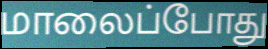
மாலைப்போது